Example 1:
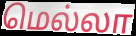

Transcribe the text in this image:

மெல்லா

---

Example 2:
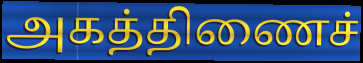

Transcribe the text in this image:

அகத்திணைச்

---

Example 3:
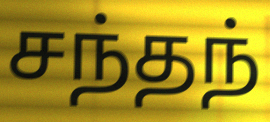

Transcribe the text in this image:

சந்தந்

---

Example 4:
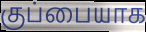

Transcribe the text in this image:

குப்பையாக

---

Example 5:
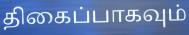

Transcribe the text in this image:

திகைப்பாகவும்